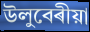
উলুবেৰীয়া